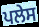
ਪਲੇਸ